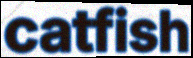
catfish